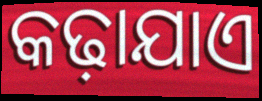
କଢ଼ାଯାଏ